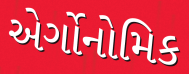
એર્ગોનોમિક